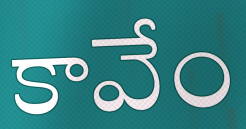
కావేం